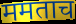
ममताच